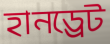
হানড্রেট